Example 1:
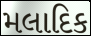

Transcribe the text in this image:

મલાદિક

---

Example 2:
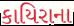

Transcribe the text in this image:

કાયિરાના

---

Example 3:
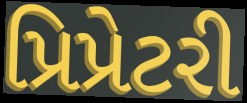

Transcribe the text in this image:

પ્રિપ્રેટરી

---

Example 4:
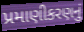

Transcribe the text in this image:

પ્રમાણીકરણનું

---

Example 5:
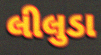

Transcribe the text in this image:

લીલુડા